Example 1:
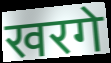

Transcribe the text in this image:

खरगे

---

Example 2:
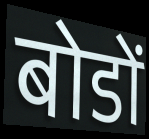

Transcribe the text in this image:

बोडों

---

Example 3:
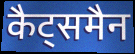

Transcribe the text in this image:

कैट्समैन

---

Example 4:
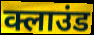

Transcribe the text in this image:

क्लाउंड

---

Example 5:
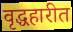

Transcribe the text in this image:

वृद्धहारीत